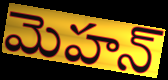
మెహన్